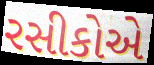
રસીકોએ